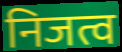
निजत्व